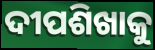
ଦୀପଶିଖାକୁ